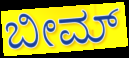
ಬೀಮ್